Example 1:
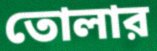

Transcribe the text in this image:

তোলার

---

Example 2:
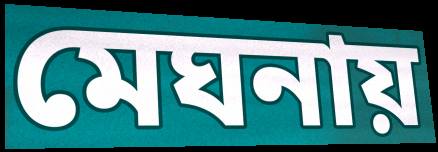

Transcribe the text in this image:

মেঘনায়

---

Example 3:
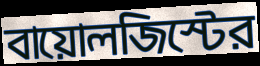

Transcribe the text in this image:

বায়োলজিস্টের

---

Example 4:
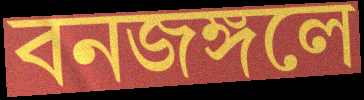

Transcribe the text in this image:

বনজঙ্গলে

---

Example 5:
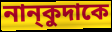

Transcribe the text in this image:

নান্‌কুদাকে